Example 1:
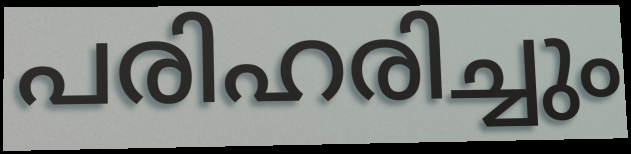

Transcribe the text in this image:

പരിഹരിച്ചും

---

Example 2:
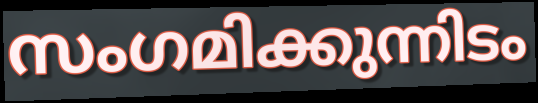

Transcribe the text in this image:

സംഗമിക്കുന്നിടം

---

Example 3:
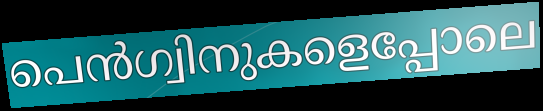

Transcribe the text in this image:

പെൻഗ്വിനുകളെപ്പോലെ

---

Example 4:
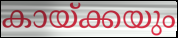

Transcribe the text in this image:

കായ്ക്കയും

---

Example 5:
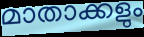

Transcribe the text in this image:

മാതാക്കളും